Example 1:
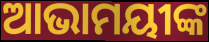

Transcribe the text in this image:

ଆଭାମୟୀଙ୍କ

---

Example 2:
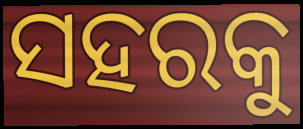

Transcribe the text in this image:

ସହରକୁ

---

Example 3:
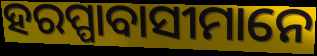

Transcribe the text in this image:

ହରପ୍ପାବାସୀମାନେ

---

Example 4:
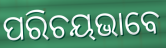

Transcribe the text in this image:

ପରିଚୟଭାବେ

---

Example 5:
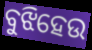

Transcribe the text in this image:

ବୁଝିହେଉ